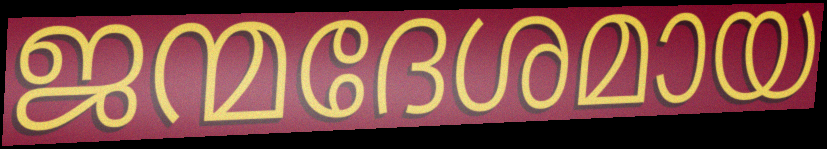
ജന്മദേശമായ